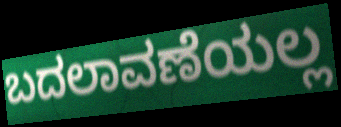
ಬದಲಾವಣೆಯಲ್ಲ